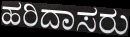
ಹರಿದಾಸರು